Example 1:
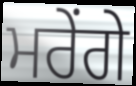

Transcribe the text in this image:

ਮਰੇਂਗੇ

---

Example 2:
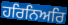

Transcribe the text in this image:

ਹਰਿਨਿਅਰਿ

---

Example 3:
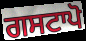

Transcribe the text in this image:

ਗਸਟਾਪੋ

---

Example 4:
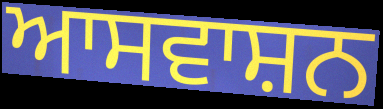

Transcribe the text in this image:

ਆਸਵਾਸ਼ਨ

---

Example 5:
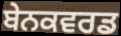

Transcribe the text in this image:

ਬੇਨਕਵਰਡ